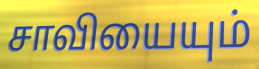
சாவியையும்